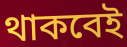
থাকবেই